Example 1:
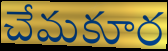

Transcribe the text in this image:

చేమకూర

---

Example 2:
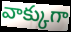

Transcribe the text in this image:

వాక్కుగా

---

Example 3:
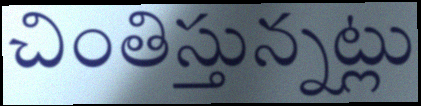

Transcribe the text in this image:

చింతిస్తున్నట్లు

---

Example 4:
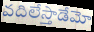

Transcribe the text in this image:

వదిలేస్తాడేమో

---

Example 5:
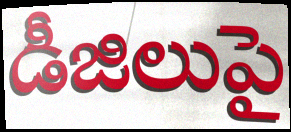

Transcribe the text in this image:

డీజిలుపై